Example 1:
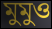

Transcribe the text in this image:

মুমুও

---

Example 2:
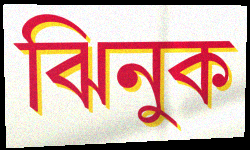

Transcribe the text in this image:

ঝিনুক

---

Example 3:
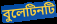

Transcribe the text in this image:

বুলেটিনটি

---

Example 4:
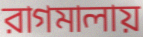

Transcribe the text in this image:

রাগমালায়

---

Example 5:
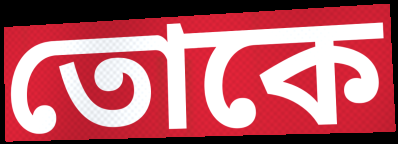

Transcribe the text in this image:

তোকে